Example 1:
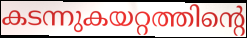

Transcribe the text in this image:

കടന്നുകയറ്റത്തിന്റെ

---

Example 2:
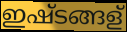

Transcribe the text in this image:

ഇഷ്ടങ്ങള്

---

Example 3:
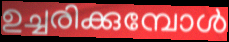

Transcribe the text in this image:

ഉച്ചരിക്കുമ്പോൾ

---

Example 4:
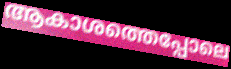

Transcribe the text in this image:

ആകാശത്തെപ്പോലെ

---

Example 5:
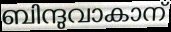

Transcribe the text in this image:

ബിന്ദുവാകാന്